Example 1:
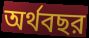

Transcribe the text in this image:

অর্থবছর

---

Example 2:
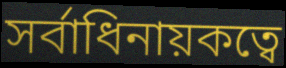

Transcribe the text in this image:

সর্বাধিনায়কত্বে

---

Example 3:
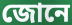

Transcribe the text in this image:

জোনে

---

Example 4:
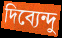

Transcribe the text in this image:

দিব্যেন্দু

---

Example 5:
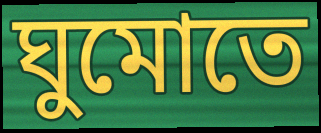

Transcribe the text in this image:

ঘুমোতে